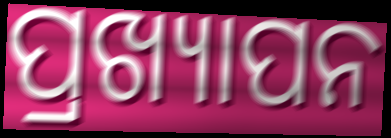
ପ୍ରଖ୍ୟାପନ